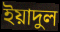
ইয়াদুল